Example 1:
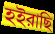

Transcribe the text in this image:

হইরাছি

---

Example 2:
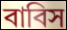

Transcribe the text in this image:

বাবিস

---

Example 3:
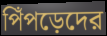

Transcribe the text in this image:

পিঁপড়েদের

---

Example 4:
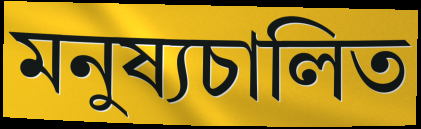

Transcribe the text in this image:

মনুষ্যচালিত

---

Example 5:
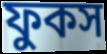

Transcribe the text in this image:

ফুকস